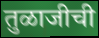
तुळाजीची